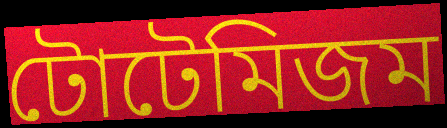
টোটেমিজম